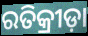
ରତିକ୍ରୀଡ଼ା